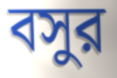
বসুর